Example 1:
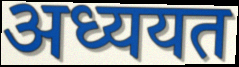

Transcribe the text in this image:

अध्ययत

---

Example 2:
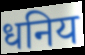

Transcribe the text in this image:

धनिय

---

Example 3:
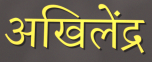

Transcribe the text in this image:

अखिलेंद्र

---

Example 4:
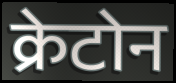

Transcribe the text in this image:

क्रेटोन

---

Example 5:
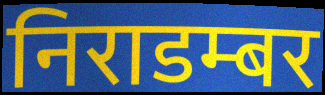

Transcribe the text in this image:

निराडम्बर